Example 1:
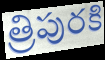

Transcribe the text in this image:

త్రిపురకి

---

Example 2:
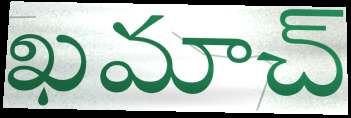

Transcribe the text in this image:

ఖమాచ్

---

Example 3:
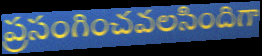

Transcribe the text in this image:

ప్రసంగించవలసిందిగా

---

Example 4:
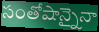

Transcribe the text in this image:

సంతోషాన్నైనా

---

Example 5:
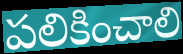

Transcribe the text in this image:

పలికించాలి